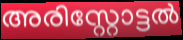
അരിസ്റ്റോട്ടൽ